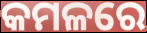
କମଳରେ